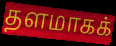
தளமாகக்